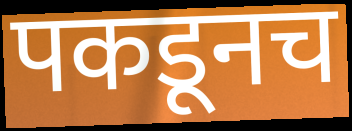
पकडूनच